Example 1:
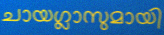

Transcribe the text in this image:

ചായഗ്ലാസുമായി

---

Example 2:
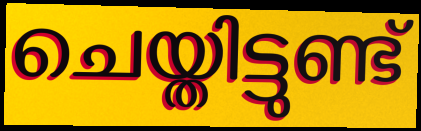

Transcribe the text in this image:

ചെയ്തിട്ടുണ്ട്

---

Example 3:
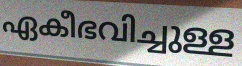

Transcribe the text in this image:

ഏകീഭവിച്ചുള്ള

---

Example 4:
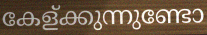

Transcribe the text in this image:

കേള്ക്കുന്നുണ്ടോ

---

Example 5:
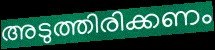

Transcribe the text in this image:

അടുത്തിരിക്കണം